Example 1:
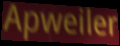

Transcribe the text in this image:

Apweiler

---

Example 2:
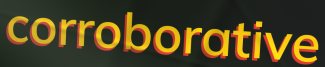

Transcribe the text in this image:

corroborative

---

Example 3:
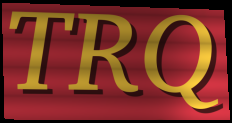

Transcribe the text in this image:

TRQ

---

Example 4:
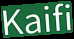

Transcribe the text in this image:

Kaifi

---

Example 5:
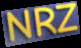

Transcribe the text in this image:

NRZ